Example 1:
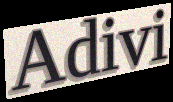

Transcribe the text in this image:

Adivi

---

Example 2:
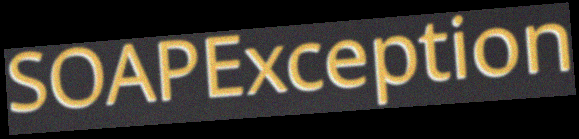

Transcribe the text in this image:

SOAPException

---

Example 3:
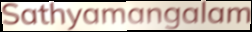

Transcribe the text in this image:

Sathyamangalam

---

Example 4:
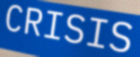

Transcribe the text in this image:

CRISIS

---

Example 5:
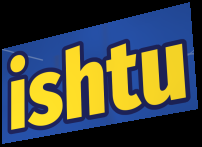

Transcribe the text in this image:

ishtu